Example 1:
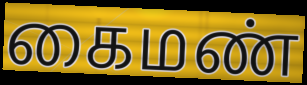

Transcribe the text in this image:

கைமண்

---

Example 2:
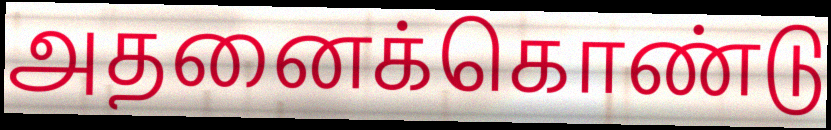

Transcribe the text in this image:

அதனைக்கொண்டு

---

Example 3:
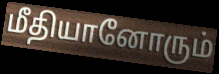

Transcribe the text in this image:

மீதியானோரும்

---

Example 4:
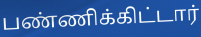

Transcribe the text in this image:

பண்ணிக்கிட்டார்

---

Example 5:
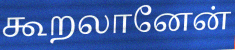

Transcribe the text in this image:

கூறலானேன்